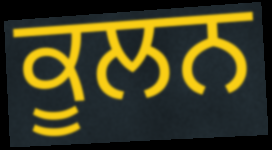
ਕੂਲਨ